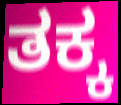
ತಕ್ಕ